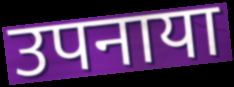
उपनाया